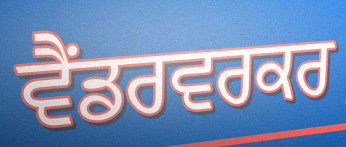
ਵੈਂਡਰਵਰਕਰ